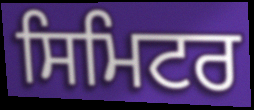
ਸਿਮਿਟਰ